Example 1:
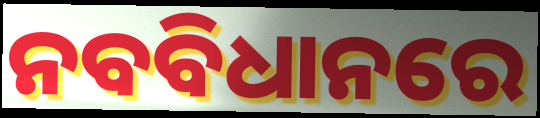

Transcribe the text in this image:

ନବବିଧାନରେ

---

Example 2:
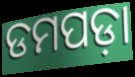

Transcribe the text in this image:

ଡମପଡ଼ା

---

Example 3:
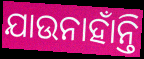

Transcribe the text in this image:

ଯାଉନାହାଁନ୍ତି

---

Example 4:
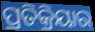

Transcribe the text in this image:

ପ୍ରତିକ୍ରିୟାର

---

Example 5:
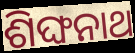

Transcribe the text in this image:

ଶିଙ୍ଘନାଥ